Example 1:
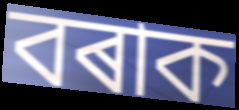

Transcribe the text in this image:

বৰাক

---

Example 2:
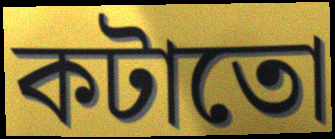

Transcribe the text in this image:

কটাতো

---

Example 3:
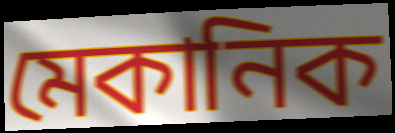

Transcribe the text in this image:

মেকানিক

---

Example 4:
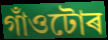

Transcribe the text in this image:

গাঁওটোৰ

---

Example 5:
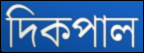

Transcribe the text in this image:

দিকপাল